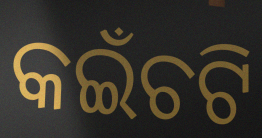
କଇଁଚଟି